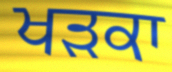
ਖੜਕਾ